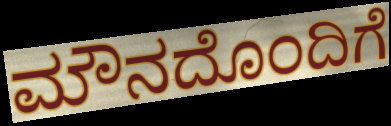
ಮೌನದೊಂದಿಗೆ